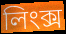
লিংক্স